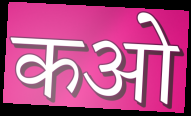
कओ